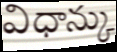
విధాన్కు